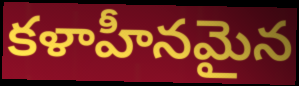
కళాహీనమైన